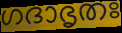
ഗദാഭൃതഃ